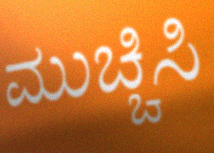
ಮುಚ್ಚಿಸಿ